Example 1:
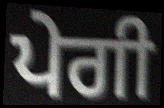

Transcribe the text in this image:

ਪੇਗੀ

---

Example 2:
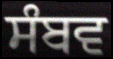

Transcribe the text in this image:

ਸੰਬਵ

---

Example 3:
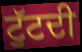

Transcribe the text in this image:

ਟੁੱਟਦੀ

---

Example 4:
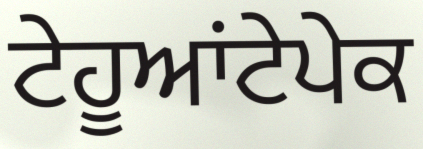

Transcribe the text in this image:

ਟੇਹੂਆਂਟੇਪੇਕ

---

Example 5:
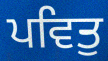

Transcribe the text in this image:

ਪਵਿਤੁ